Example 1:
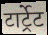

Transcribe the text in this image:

टार्ट्रेट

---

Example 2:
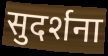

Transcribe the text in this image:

सुदर्शना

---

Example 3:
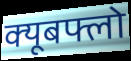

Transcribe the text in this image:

क्यूबफ्लो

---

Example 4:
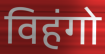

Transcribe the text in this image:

विहंगो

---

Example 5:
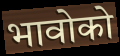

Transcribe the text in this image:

भावोको